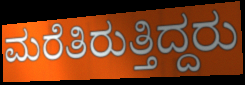
ಮರೆತಿರುತ್ತಿದ್ದರು